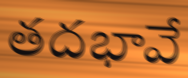
తదభావే